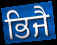
ਭਿਜੈ